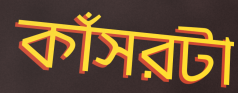
কাঁসরটা